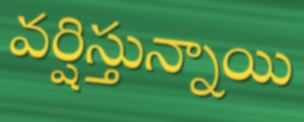
వర్షిస్తున్నాయి